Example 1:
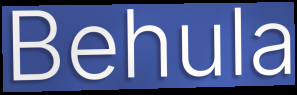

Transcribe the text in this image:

Behula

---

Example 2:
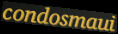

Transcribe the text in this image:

condosmaui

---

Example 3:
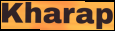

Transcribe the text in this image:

Kharap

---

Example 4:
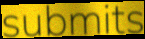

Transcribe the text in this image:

submits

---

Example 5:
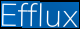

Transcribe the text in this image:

Efflux